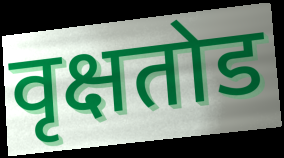
वृक्षतोड